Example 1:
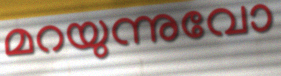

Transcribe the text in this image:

മറയുന്നുവോ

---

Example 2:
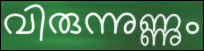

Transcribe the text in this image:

വിരുന്നുണ്ണും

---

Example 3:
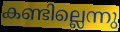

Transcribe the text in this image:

കണ്ടില്ലെന്നു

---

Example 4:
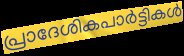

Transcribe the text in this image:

പ്രാദേശികപാർട്ടികൾ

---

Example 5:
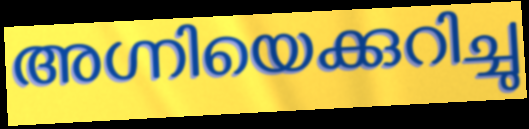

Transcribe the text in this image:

അഗ്നിയെക്കുറിച്ചു